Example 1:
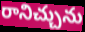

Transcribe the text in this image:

రానిచ్చును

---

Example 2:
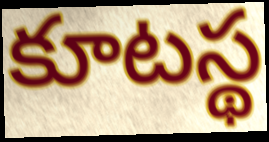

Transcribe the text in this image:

కూటస్థ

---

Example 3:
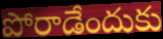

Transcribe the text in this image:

పోరాడేందుకు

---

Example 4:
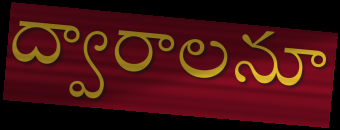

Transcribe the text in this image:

ద్వారాలనూ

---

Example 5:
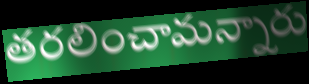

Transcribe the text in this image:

తరలించామన్నారు